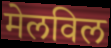
मेलविल